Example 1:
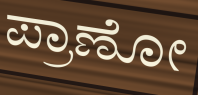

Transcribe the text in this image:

ಪ್ರಾಣೋ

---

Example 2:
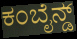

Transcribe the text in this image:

ಕಂಬೈನ್ಡ್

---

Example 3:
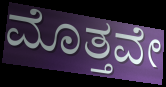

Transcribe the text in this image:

ಮೊತ್ತವೇ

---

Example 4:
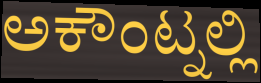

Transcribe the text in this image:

ಅಕೌಂಟ್ನಲ್ಲಿ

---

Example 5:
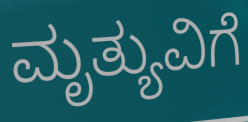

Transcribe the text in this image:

ಮೃತ್ಯುವಿಗೆ